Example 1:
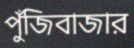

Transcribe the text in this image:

পুঁজিবাজার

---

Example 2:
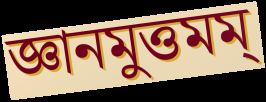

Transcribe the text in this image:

জ্ঞানমুত্তমম্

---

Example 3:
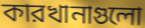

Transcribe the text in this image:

কারখানাগুলো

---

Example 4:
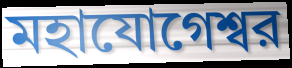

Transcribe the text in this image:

মহাযোগেশ্বর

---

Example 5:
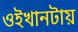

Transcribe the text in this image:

ওইখানটায়